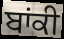
ਬਾਂਕੀ